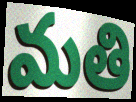
మతి